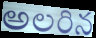
అలరిన